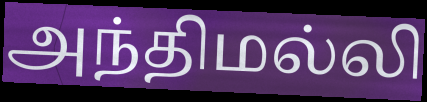
அந்திமல்லி